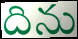
దిను